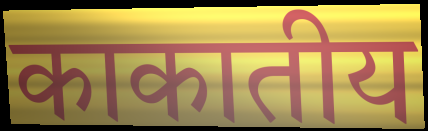
काकातीय